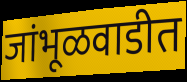
जांभूळवाडीत